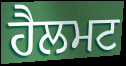
ਹੈਲਮਟ